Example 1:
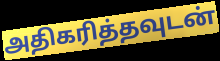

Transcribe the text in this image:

அதிகரித்தவுடன்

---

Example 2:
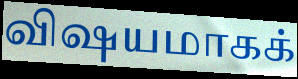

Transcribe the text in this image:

விஷயமாகக்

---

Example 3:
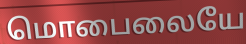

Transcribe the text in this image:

மொபைலையே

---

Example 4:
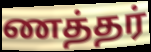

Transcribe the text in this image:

ணத்தர்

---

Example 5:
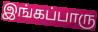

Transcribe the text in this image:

இங்கப்பாரு